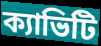
ক্যাভিটি